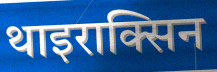
थाइराक्सिन